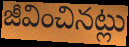
జీవించినట్లు